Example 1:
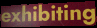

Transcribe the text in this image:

exhibiting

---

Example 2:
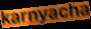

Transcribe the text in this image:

karnyacha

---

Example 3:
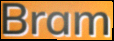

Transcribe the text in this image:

Bram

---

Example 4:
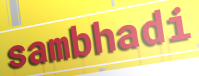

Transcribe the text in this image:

sambhadi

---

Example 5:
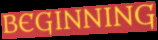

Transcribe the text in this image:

BEGINNING